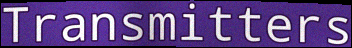
Transmitters